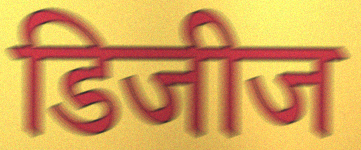
डिजीज